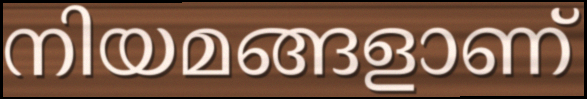
നിയമങ്ങളാണ്